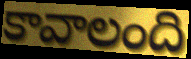
కావాలంది